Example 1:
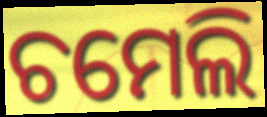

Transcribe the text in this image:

ଚମେଲି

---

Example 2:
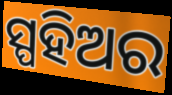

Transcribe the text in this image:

ସ୍ପହିଅର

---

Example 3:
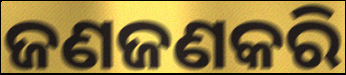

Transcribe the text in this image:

ଜଣଜଣକରି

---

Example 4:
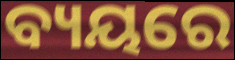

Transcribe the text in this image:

ବ୍ୟୟରେ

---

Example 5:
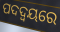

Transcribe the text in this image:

ପଦଦ୍ୱୟରେ